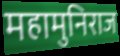
महामुनिराज